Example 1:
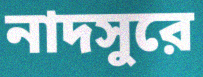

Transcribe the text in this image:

নাদসুরে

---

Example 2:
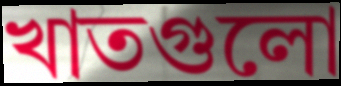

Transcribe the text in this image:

খাতগুলো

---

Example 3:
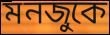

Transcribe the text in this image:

মনজুকে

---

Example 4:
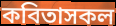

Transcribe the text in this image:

কবিতাসকল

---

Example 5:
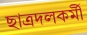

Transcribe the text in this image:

ছাত্রদলকর্মী